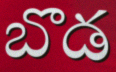
బొడ